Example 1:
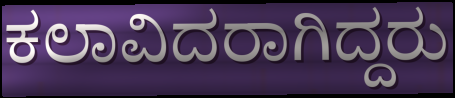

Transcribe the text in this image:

ಕಲಾವಿದರಾಗಿದ್ದರು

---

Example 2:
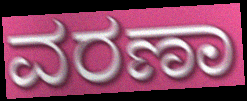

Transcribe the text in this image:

ವರಣಾ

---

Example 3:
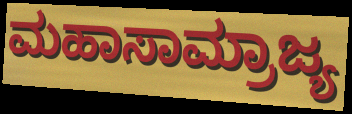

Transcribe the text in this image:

ಮಹಾಸಾಮ್ರಾಜ್ಯ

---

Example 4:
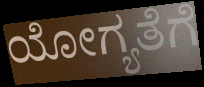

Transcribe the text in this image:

ಯೋಗ್ಯತೆಗೆ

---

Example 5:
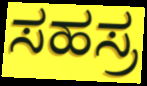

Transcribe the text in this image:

ಸಹಸ್ರ